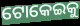
ଟୋକେଇକୁ